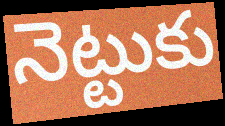
నెట్టుకు